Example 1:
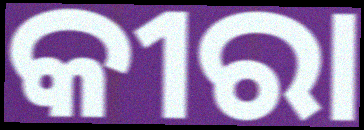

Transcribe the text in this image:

କୀରା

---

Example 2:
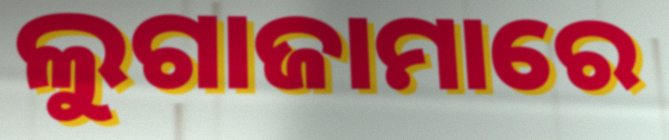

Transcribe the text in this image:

ଲୁଗାଜାମାରେ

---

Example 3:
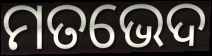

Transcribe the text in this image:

ମତଭେଦ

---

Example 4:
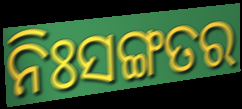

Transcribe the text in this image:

ନିଃସଙ୍ଗତର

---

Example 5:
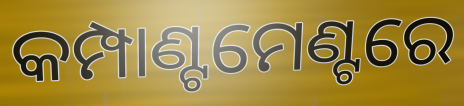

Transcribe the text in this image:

କମ୍ପାଣ୍ଟମେଣ୍ଟରେ